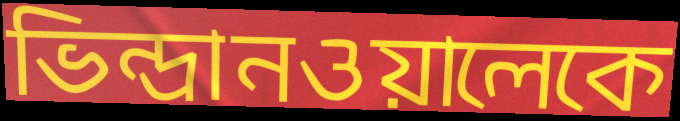
ভিন্দ্রানওয়ালেকে